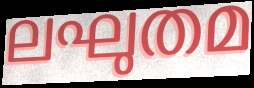
ലഘുതമ